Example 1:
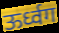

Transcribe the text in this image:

ऊर्ध्वग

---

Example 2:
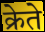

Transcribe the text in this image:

क्रेते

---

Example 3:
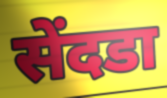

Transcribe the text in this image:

सेंदडा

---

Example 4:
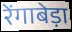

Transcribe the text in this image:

रेंगाबेड़ा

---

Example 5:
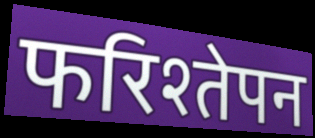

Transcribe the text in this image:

फरिश्तेपन